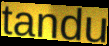
tandu